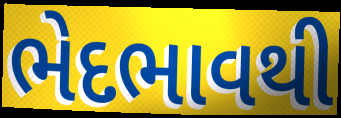
ભેદભાવથી